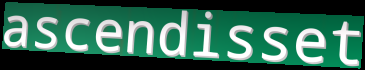
ascendisset